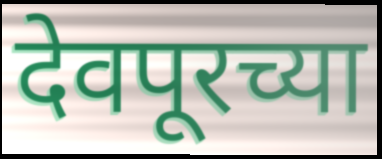
देवपूरच्या